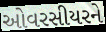
ઓવરસીયરને